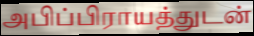
அபிப்பிராயத்துடன்